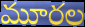
మూరల